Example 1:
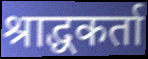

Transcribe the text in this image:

श्राद्धकर्ता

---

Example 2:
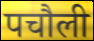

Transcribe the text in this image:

पचौली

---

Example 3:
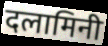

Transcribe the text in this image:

दलामिनी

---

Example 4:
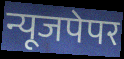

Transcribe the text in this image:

न्‍यूजपेपर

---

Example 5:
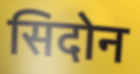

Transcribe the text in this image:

सिदोन